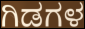
ಗಿಡಗಳ